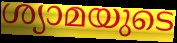
ശ്യാമയുടെ